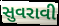
સુવરાવી